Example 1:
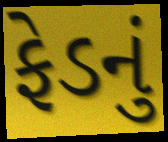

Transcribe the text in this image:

ફેડનું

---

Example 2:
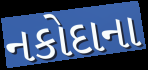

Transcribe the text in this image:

નકોદાના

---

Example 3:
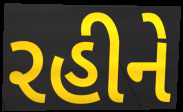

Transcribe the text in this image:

રહીને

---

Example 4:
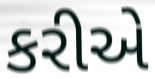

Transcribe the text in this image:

કરીએ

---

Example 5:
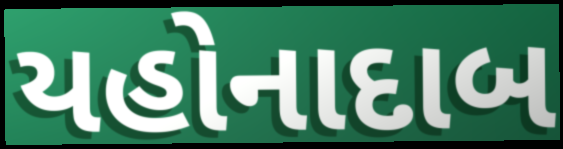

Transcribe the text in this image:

યહોનાદાબ